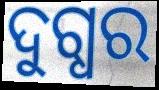
ଦୁଗ୍ଧର